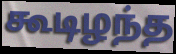
கூடிழந்த